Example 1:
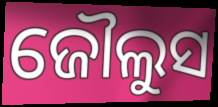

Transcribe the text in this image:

ଜୌଲୁସ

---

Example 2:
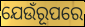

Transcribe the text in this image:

ଯେଉଁରୂପରେ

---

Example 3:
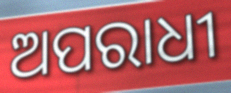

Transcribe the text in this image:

ଅପରାଧୀ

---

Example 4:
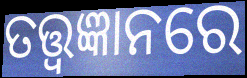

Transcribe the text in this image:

ତତ୍ତ୍ୱଜ୍ଞାନରେ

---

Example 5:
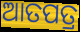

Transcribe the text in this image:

ଆତପତ୍ର